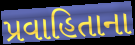
પ્રવાહિતાના